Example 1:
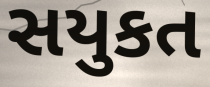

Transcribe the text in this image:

સયુકત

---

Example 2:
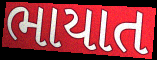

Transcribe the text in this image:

ભાયાત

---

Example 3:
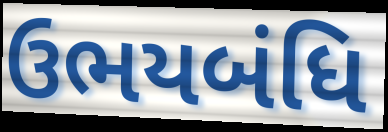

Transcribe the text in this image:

ઉભયબંધિ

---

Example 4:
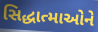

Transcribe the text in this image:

સિદ્ધાત્માઓને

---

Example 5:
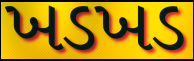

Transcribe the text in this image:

ખડખડ